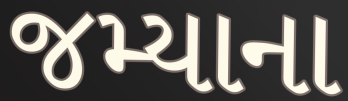
જમ્યાના